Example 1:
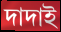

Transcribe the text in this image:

দাদাই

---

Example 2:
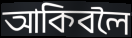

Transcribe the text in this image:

আকিবলৈ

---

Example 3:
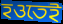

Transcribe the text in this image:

হওতেই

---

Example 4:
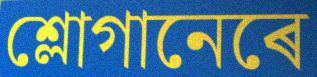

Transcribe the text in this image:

শ্লোগানেৰে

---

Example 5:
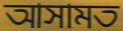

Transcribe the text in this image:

আসামত